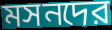
মসনদের